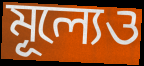
মূল্যেও